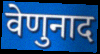
वेणुनाद